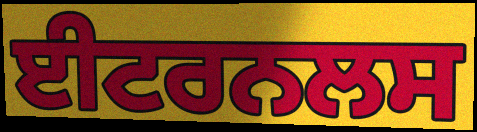
ਈਟਰਨਲਸ